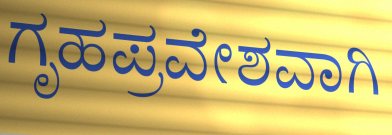
ಗೃಹಪ್ರವೇಶವಾಗಿ